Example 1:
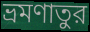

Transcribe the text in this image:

ভ্রমণাতুর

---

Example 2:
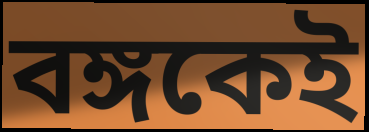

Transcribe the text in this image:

বঙ্গকেই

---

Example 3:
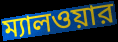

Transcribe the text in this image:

ম্যালওয়ার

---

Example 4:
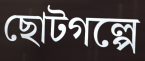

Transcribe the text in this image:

ছোটগল্পে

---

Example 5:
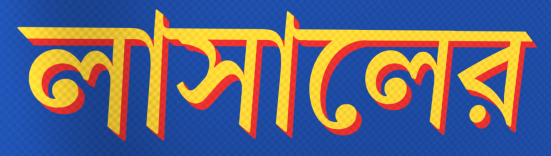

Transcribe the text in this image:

লাসালের